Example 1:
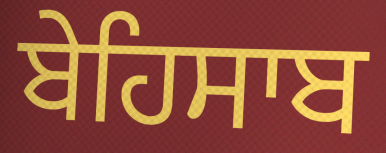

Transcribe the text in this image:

ਬੇਹਿਸਾਬ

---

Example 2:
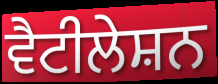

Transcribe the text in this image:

ਵੈਟੀਲੇਸ਼ਨ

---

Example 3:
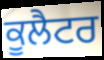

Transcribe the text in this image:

ਕੂਲੈਟਰ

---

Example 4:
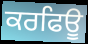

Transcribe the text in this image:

ਕਰਫਿਊ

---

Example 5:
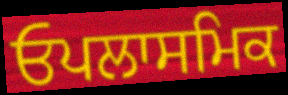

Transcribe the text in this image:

ਓਪਲਾਸਮਿਕ